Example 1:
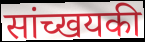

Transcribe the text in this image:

सांच्खयकी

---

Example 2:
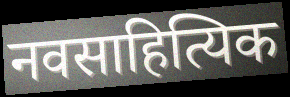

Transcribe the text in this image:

नवसाहित्यिक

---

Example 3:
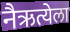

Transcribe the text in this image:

नैऋत्येला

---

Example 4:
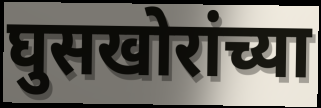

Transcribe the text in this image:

घुसखोरांच्या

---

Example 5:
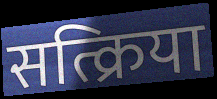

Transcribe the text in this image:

सत्क्रिया